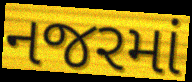
નજરમાં